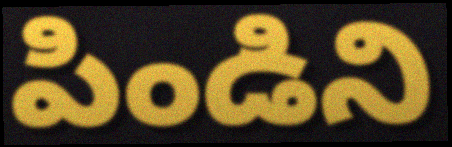
పిండిని